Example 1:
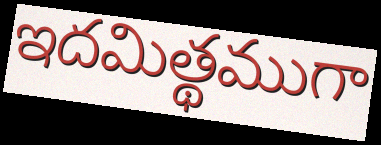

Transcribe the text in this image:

ఇదమిత్థముగా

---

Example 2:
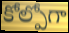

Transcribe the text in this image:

కోల్పోగా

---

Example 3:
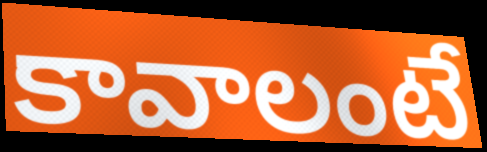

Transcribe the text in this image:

కావాలంటే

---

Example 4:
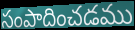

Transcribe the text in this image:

సంపాదించడము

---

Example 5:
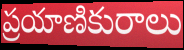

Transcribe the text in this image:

ప్రయాణికురాలు